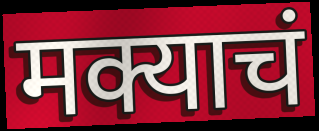
मक्याचं